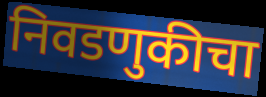
निवडणुकीचा